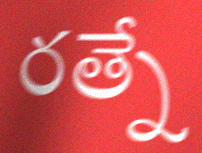
రత్నే